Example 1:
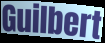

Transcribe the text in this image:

Guilbert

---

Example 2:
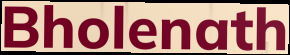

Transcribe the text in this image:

Bholenath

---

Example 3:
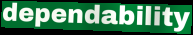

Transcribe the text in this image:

dependability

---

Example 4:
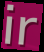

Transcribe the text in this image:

ir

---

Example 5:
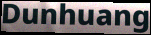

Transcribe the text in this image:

Dunhuang